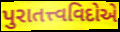
પુરાતત્ત્વવિદોએ